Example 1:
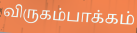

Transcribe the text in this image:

விருகம்பாக்கம்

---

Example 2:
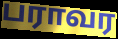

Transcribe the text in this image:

பராவர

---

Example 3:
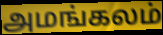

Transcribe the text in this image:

அமங்கலம்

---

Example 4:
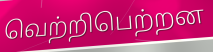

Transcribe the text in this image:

வெற்றிபெற்றன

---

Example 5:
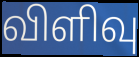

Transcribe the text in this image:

விளிவு